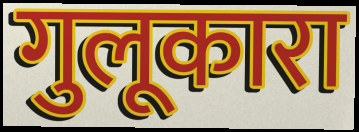
गुलूकारा